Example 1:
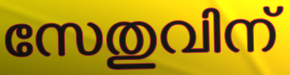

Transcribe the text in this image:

സേതുവിന്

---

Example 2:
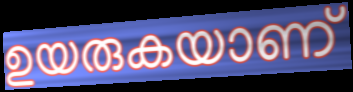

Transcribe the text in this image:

ഉയരുകയാണ്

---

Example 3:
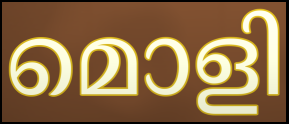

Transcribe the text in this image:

മൊളി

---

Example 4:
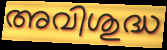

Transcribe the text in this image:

അവിശുദ്ധ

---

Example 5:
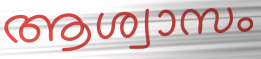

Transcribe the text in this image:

ആശ്വാസം